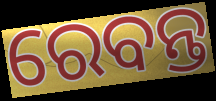
ରେବନ୍ତ